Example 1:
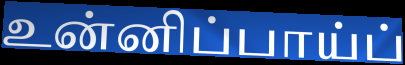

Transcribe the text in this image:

உன்னிப்பாய்ப்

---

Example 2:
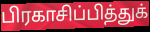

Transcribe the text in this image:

பிரகாசிப்பித்துக்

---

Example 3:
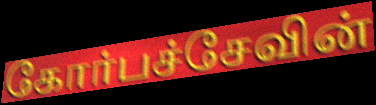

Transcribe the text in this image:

கோர்பச்சேவின்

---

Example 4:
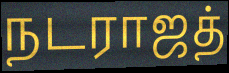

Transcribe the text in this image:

நடராஜத்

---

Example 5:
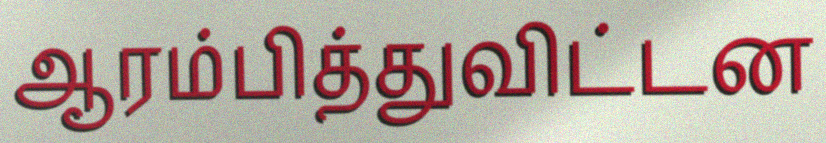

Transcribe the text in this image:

ஆரம்பித்துவிட்டன